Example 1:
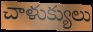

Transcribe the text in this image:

చాళుక్యులు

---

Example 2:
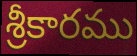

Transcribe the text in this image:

శ్రీకారము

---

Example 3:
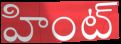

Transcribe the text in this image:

హింట్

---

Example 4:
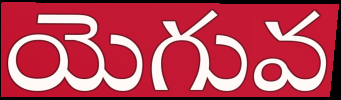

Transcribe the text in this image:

యెగువ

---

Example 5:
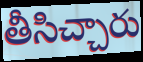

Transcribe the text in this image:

తీసిచ్చారు